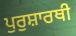
ਪੁਰੁਸ਼ਾਰਥੀ